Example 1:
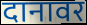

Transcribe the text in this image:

दानावर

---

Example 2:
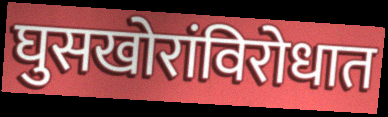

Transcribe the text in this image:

घुसखोरांविरोधात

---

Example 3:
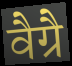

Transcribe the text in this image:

वैग्रै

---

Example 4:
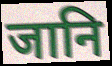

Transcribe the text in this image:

जानि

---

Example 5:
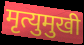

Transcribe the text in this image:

मृत्युमुखी